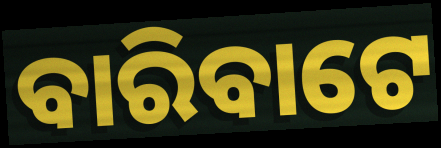
ବାରିବାଟେ